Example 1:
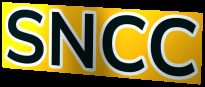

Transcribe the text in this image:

SNCC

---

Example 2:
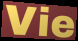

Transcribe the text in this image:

Vie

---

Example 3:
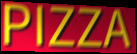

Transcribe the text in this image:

PIZZA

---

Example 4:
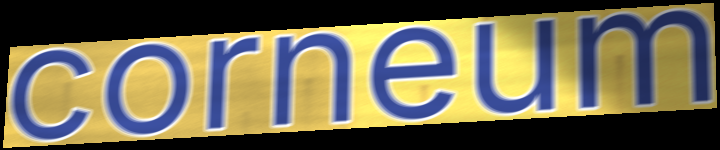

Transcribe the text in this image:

corneum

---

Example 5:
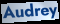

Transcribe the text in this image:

Audrey